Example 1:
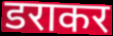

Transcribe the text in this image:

डराकर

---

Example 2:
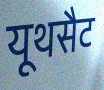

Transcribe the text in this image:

यूथसैट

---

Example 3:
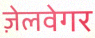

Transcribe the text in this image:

ज़ेलवेगर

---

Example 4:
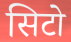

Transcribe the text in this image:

सिटो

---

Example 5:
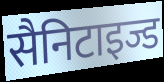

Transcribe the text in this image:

सैनिटाइज्ड